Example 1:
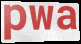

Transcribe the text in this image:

pwa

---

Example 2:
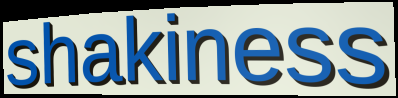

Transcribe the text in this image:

shakiness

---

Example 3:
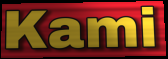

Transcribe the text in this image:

Kami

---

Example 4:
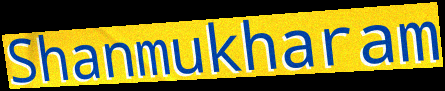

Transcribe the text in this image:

Shanmukharam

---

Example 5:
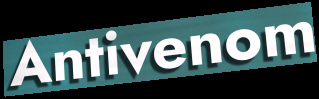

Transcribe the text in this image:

Antivenom